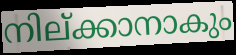
നില്ക്കാനാകും